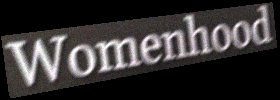
Womenhood